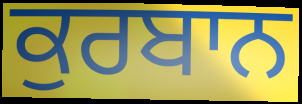
ਕੁਰਬਾਨ